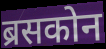
ब्रसकोन